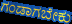
ಗಂಡಾಗಬೇಕು